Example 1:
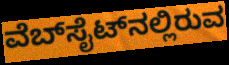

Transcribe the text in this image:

ವೆಬ್‌ಸೈಟ್‌ನಲ್ಲಿರುವ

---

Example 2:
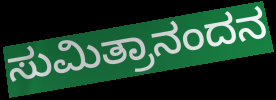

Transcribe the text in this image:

ಸುಮಿತ್ರಾನಂದನ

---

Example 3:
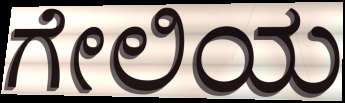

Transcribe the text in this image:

ಗೇಲಿಯ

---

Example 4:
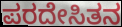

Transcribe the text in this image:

ಪರದೇಸಿತನ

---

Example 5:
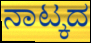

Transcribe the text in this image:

ನಾಟ್ಕದ